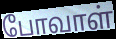
போவாள்